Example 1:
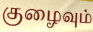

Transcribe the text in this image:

குழைவும்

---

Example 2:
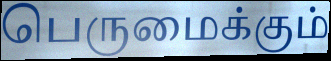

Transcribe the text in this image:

பெருமைக்கும்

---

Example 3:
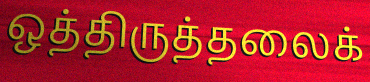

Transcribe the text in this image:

ஒத்திருத்தலைக்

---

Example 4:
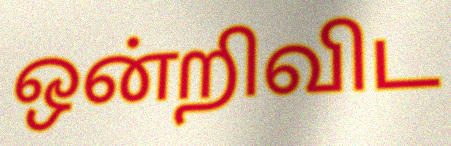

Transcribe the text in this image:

ஒன்றிவிட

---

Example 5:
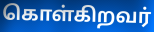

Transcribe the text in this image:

கொள்கிறவர்